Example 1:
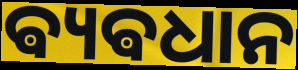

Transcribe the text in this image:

ଵ୍ୟଵଧାନ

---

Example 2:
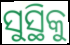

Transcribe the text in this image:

ସୁସ୍ଥିକୁ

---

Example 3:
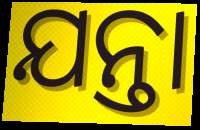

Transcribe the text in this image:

ଯନ୍ତା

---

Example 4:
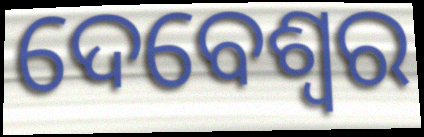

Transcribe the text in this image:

ଦେବେଶ୍ୱର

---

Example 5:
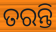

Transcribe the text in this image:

ତରନ୍ତି